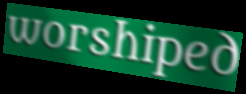
worshiped